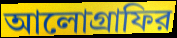
আলোগ্রাফির